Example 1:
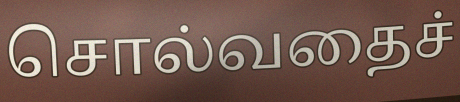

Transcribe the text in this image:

சொல்வதைச்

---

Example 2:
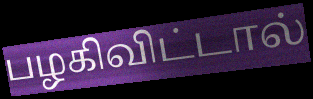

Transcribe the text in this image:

பழகிவிட்டால்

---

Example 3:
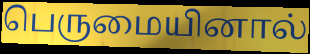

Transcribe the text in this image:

பெருமையினால்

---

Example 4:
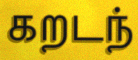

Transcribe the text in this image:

கறடந்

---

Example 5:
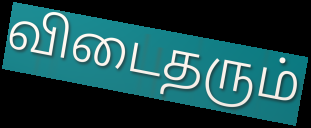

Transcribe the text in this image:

விடைதரும்